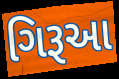
ગિરૂઆ